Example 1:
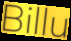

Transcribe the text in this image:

Billu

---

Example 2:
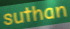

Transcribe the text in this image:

suthan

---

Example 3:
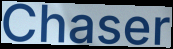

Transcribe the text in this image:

Chaser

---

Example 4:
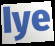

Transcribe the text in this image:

Iye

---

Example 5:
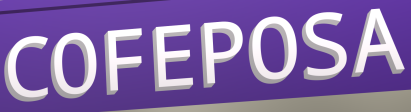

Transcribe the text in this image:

COFEPOSA